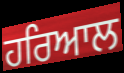
ਹਰਿਆਲ